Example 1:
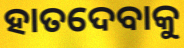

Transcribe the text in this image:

ହାତଦେବାକୁ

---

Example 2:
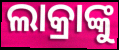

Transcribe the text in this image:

ଲାକ୍ରାଙ୍କୁ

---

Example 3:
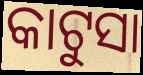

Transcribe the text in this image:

କାଟୁସା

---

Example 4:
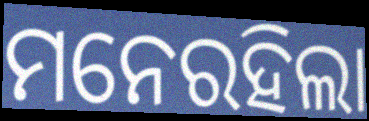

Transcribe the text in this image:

ମନେରହିଲା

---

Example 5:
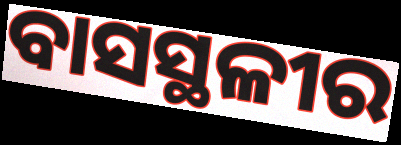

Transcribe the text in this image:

ବାସସ୍ଥଳୀର